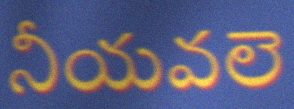
నీయవలె